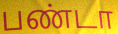
பண்டா